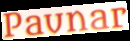
Paunar